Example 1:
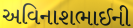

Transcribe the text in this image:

અવિનાશભાઈની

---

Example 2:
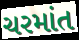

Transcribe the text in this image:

ચરમાંત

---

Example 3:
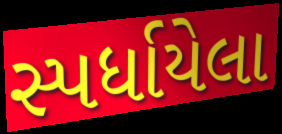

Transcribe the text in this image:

સ્પર્ધાયેલા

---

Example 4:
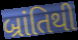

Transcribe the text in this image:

બ્રાંતિથી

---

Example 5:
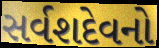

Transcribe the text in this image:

સર્વશદેવનો